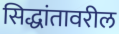
सिद्धांतावरील